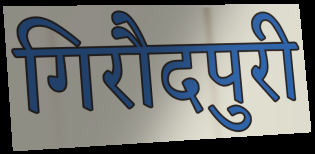
गिरौदपुरी